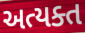
અત્યક્ત